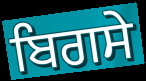
ਬਿਗਸੇ